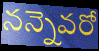
నన్నెవరో